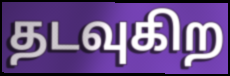
தடவுகிற